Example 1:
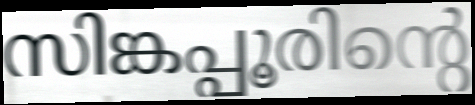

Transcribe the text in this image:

സിങ്കപ്പൂരിന്റെ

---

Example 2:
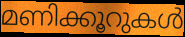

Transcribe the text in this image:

മണിക്കൂറുകൾ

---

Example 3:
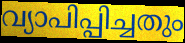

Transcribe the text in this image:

വ്യാപിപ്പിച്ചതും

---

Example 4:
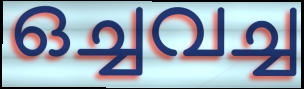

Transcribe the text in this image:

ഒച്ചവച്ച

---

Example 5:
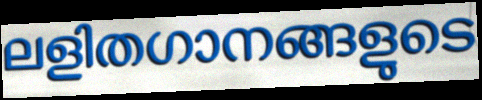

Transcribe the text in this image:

ലളിതഗാനങ്ങളുടെ